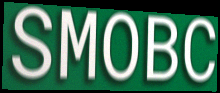
SMOBC